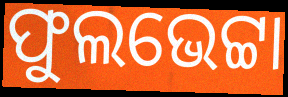
ଫୁଲଭେଟ୍ଟା